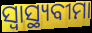
ସ୍ଵାସ୍ଥ୍ୟବୀମା